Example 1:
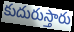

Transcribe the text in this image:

కుదురుస్తారు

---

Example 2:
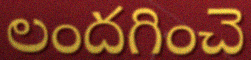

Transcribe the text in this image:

లందగించె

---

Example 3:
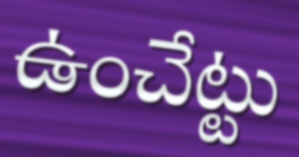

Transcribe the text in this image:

ఉంచేట్టు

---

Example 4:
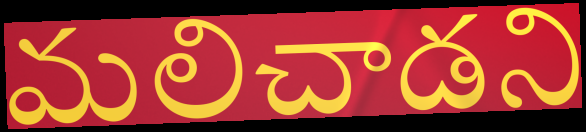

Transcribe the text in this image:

మలిచాడని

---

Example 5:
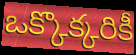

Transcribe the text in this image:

ఒక్కొక్కరికీ